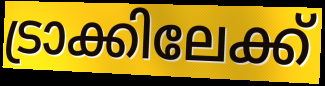
ട്രാക്കിലേക്ക്